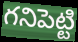
గనిపెట్టి